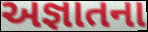
અજ્ઞાતના